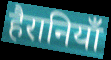
हैरानियाँ